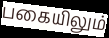
பகையிலும்